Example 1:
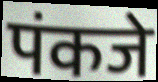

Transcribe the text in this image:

पंकजे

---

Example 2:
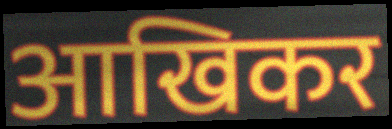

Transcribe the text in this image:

आखिकर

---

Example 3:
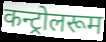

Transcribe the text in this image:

कन्ट्रोलरूम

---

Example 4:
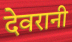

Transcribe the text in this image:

देवरानी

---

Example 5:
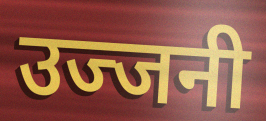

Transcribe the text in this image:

उज्जनी